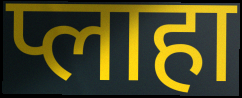
प्लाहा